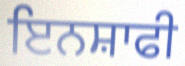
ਇਨਸ਼ਾਫੀ